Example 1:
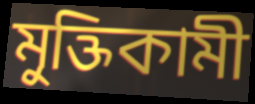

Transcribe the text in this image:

মুক্তিকামী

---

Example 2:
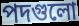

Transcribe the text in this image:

পদগুলো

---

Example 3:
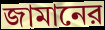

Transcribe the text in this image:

জামানের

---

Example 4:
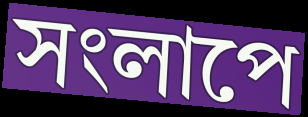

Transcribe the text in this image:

সংলাপে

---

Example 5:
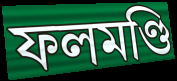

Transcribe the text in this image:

ফলমণ্ডি